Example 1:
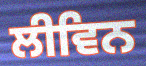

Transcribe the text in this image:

ਲੀਵਿਨ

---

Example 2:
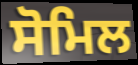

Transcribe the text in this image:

ਸੋਮਿਲ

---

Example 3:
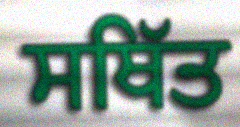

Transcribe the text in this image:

ਸਥਿੱਤ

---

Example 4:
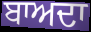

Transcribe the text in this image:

ਬਾਅਦਾ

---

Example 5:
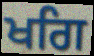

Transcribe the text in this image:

ਖਗਿ